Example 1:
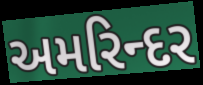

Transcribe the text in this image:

અમરિન્દર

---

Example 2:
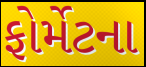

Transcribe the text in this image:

ફોર્મેટના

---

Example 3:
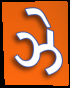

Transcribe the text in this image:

ઝે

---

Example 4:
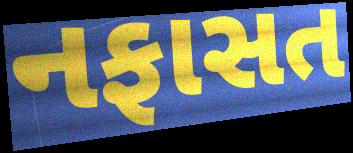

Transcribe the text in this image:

નફાસત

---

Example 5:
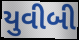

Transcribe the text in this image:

યુવીબી